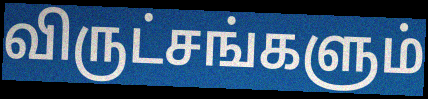
விருட்சங்களும்